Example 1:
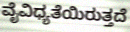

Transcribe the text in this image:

ವೈವಿಧ್ಯತೆಯಿರುತ್ತದೆ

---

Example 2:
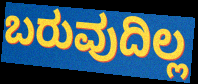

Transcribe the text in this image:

ಬರುವುದಿಲ್ಲ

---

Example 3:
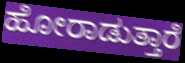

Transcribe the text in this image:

ಹೋರಾಡುತ್ತಾರೆ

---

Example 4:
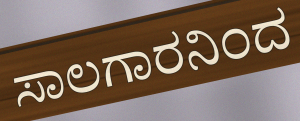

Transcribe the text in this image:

ಸಾಲಗಾರನಿಂದ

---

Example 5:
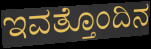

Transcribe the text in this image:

ಇವತ್ತೊಂದಿನ